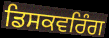
ਡਿਸਕਵਰਿੰਗ